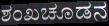
ಶಂಖಚೂಡನ